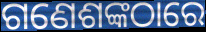
ଗଣେଶଙ୍କଠାରେ